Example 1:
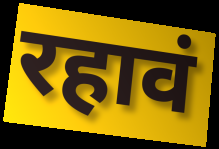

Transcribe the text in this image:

रहावं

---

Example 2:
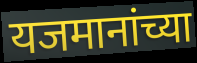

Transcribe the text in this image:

यजमानांच्या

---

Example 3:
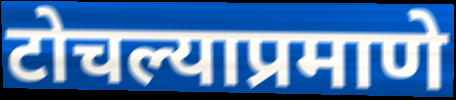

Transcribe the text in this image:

टोचल्याप्रमाणे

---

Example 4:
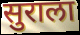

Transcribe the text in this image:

सुराला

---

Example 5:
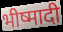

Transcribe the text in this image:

भीष्मादी